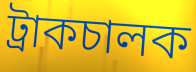
ট্রাকচালক